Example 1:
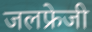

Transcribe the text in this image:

जलफ्रेजी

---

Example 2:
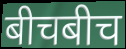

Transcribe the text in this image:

बीचबीच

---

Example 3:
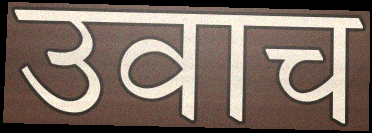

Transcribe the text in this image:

उवाच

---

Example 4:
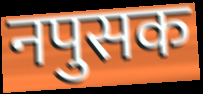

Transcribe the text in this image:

नपुसक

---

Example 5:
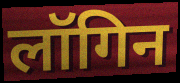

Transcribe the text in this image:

लॉगिन